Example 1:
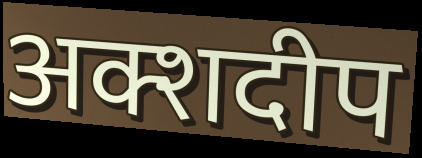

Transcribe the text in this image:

अक्शदीप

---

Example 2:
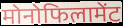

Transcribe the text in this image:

मोनोफिलामेंट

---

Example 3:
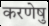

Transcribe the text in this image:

करणेषु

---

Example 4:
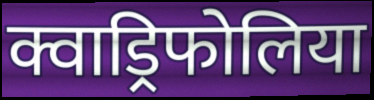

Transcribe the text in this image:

क्वाड्रिफोलिया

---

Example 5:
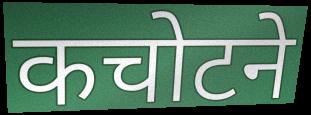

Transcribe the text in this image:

कचोटने